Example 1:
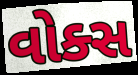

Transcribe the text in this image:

વોક્સ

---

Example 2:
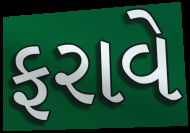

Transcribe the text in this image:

ફરાવે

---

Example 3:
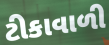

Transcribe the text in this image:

ટીકાવાળી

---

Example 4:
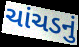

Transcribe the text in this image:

ચાંચડનું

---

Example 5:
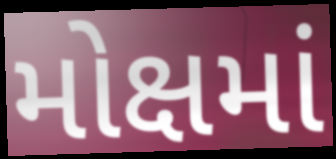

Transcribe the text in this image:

મોક્ષમાં